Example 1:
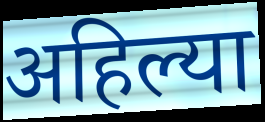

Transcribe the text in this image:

अहिल्या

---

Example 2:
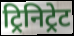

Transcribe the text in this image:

ट्रिनिट्रेट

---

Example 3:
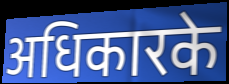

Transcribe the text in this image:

अधिकारके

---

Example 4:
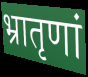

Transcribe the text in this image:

भ्रातृणां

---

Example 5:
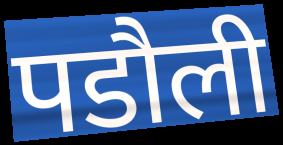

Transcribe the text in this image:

पडौली